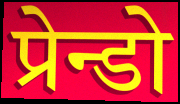
प्रेन्डो